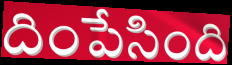
దింపేసింది